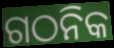
ଗଠନିକ